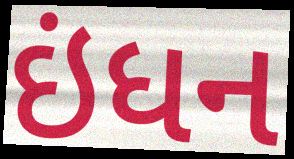
ઇંધન